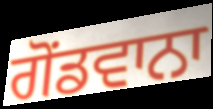
ਗੋਂਡਵਾਨਾ